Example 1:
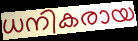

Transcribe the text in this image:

ധനികരായ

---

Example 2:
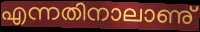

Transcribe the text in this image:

എന്നതിനാലാണു്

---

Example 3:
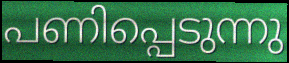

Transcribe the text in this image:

പണിപ്പെടുന്നു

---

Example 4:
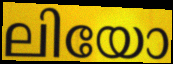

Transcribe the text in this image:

ലിയോ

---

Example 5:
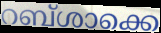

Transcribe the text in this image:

റബ്ശാക്കെ